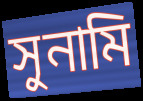
সুনামি